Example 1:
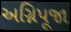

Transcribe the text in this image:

અગ્નિપૂજા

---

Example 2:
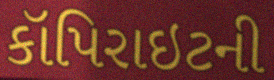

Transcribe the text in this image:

કૉપિરાઇટની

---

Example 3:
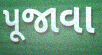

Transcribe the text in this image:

પૂજાવા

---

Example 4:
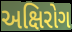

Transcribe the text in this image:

અક્ષિરોગ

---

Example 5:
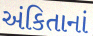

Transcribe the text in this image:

અંકિતાનાં